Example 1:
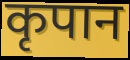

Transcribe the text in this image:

कृपान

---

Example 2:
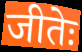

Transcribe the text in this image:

जीतेः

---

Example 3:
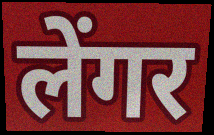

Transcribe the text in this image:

लेंगर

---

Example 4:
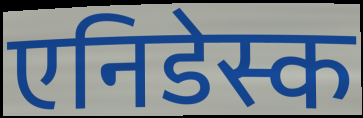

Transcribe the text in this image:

एनिडेस्क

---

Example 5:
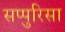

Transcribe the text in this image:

सप्पुरिसा